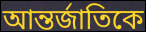
আন্তর্জাতিকে